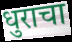
धुराचा